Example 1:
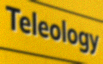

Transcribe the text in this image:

Teleology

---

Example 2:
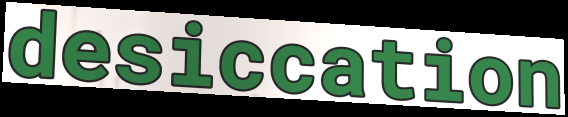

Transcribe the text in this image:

desiccation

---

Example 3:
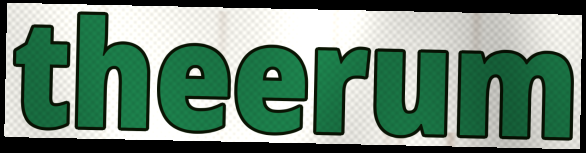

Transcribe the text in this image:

theerum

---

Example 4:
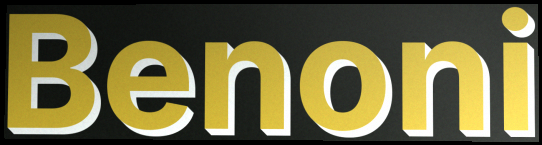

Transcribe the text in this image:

Benoni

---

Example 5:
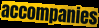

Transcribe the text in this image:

accompanies